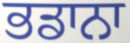
ਭਡਾਨਾ